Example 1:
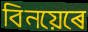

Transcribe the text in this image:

বিনয়েৰে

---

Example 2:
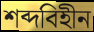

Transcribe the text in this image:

শব্দবিহীন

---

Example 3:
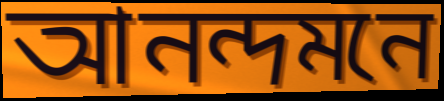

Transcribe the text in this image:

আনন্দমনে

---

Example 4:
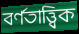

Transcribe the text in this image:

বৰ্ণতাত্ত্বিক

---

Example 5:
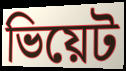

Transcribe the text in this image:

ভিয়েট